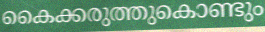
കൈക്കരുത്തുകൊണ്ടും